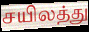
சயிலத்து